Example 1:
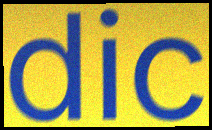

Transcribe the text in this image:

dic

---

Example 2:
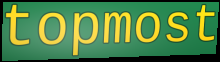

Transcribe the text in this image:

topmost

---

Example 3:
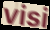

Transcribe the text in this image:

visi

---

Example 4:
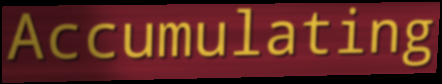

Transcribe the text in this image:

Accumulating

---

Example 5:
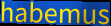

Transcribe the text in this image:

habemus